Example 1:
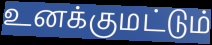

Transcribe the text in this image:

உனக்குமட்டும்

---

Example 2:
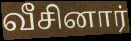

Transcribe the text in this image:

வீசினார்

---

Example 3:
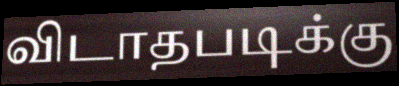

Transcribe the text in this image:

விடாதபடிக்கு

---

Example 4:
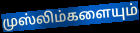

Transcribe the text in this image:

முஸ்லிம்களையும்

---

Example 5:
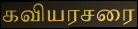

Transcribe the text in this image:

கவியரசரை